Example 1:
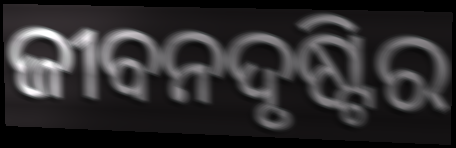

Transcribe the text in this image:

ଜୀବନଦୃଷ୍ଟିର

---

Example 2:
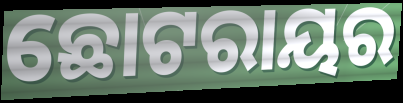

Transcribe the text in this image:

ଛୋଟରାୟର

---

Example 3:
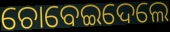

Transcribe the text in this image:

ଚୋବେଇଦେଲେ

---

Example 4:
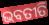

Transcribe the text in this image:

ଭବତୀତି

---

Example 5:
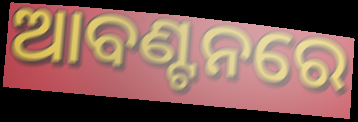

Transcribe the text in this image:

ଆବଣ୍ଟନରେ